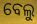
ବେଲୁ